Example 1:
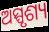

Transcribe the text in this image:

ଅସ୍ପୃଶ୍ୟ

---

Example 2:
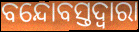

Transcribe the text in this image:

ବନ୍ଦୋବସ୍ତଦ୍ୱାରା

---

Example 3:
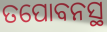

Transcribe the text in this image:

ତପୋବନସ୍ଥ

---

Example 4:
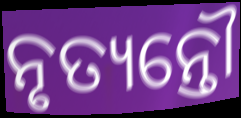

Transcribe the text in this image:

ନୃତ୍ୟନ୍ତୌ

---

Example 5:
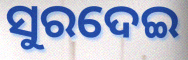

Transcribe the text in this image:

ସୁରଦେଇ